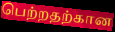
பெற்றதற்கான